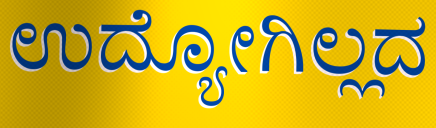
ಉದ್ಯೋಗಿಲ್ಲದ